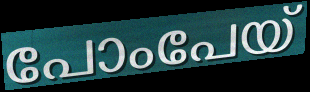
പോംപേയ്